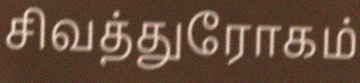
சிவத்துரோகம்